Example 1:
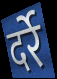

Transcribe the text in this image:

दर्रे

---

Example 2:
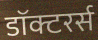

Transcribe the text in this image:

डॉक्टरर्स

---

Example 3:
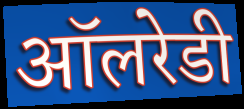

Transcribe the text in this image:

ऑलरेडी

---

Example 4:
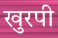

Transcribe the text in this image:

खुरपी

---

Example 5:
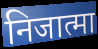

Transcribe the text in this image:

निजात्मा